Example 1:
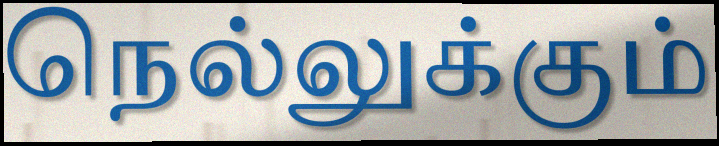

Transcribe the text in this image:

நெல்லுக்கும்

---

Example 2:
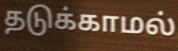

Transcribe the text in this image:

தடுக்காமல்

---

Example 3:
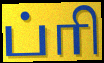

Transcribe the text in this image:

ப்ரி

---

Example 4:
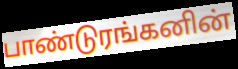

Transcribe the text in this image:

பாண்டுரங்கனின்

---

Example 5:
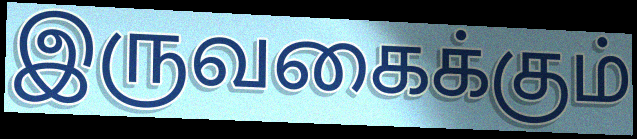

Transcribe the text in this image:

இருவகைக்கும்